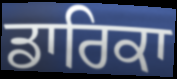
ਡਾਰਿਕਾ